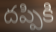
దప్పికి